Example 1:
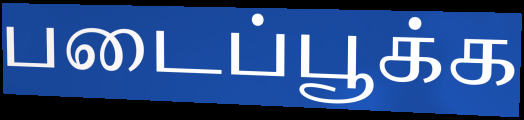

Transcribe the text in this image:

படைப்பூக்க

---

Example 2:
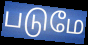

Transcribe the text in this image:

படுமே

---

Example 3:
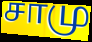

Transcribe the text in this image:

சாமு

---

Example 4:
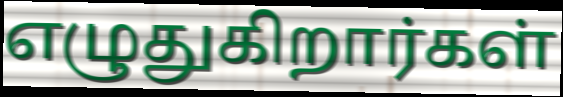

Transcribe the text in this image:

எழுதுகிறார்கள்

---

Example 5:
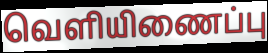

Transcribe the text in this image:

வெளியிணைப்பு